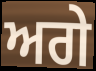
ਅਗੇ